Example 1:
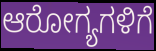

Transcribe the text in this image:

ಆರೋಗ್ಯಗಳಿಗೆ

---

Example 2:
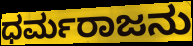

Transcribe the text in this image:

ಧರ್ಮರಾಜನು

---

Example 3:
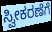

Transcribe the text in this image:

ಸ್ವೀಕರಣೆಗೆ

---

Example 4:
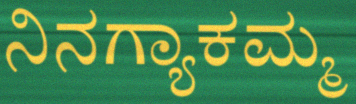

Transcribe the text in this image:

ನಿನಗ್ಯಾಕಮ್ಮ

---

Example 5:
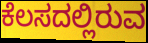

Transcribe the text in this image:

ಕೆಲಸದಲ್ಲಿರುವ